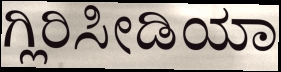
ಗ್ಲಿರಿಸೀಡಿಯಾ